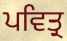
ਪਵਿਤ੍ਰ